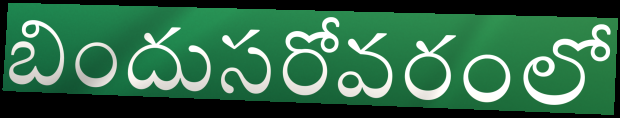
బిందుసరోవరంలో